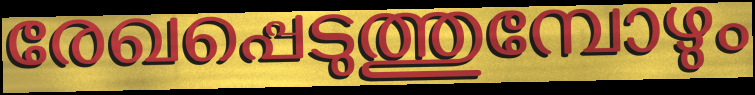
രേഖപ്പെടുത്തുമ്പോഴും